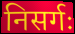
निसर्गः